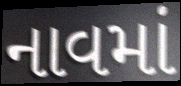
નાવમાં